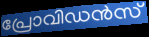
പ്രോവിഡൻസ്